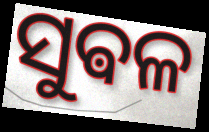
ସୁଵଳ